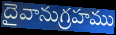
దైవానుగ్రహము